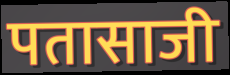
पतासाजी